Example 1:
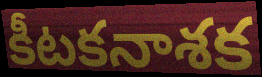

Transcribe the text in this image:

కీటకనాశక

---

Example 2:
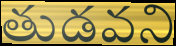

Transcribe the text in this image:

తుడవని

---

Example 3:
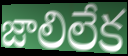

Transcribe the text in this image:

జాలిలేక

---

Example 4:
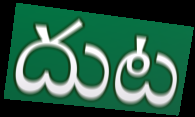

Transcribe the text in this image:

దుట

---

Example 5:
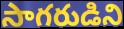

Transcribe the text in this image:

సాగరుడిని